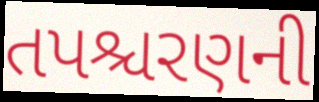
તપશ્ચરણની